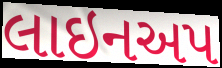
લાઇનઅપ